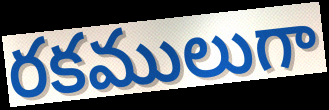
రకములుగా